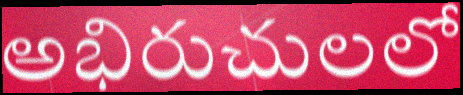
అభిరుచులలో